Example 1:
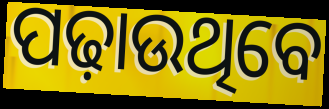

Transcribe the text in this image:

ପଢ଼ାଉଥିବେ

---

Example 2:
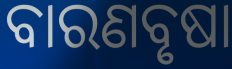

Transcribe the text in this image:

ବାରଣବୃଷା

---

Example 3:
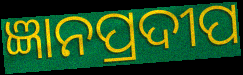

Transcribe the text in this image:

ଜ୍ଞାନପ୍ରଦୀପ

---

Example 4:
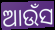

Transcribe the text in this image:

ଆଉଁସ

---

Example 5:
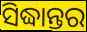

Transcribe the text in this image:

ସିଦ୍ଧାନ୍ତର